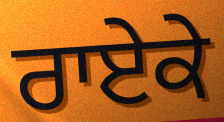
ਰਾਏਕੇ